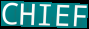
CHIEF